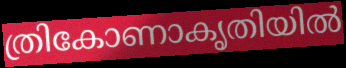
ത്രികോണാകൃതിയിൽ